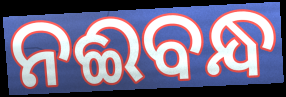
ନଈବନ୍ଧ